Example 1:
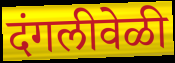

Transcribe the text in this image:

दंगलीवेळी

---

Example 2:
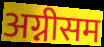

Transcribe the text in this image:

अग्नीसम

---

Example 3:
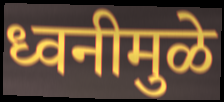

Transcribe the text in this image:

ध्वनीमुळे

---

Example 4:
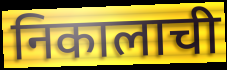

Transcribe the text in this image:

निकालाची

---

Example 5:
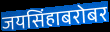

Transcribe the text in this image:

जयसिंहाबरोबर